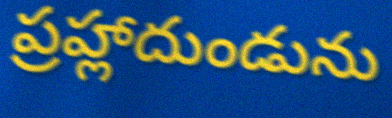
ప్రహ్లాదుండును